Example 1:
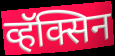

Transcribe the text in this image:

व्हॅक्सिन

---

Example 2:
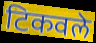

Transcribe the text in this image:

टिकवले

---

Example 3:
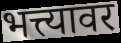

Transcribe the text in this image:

भत्त्यावर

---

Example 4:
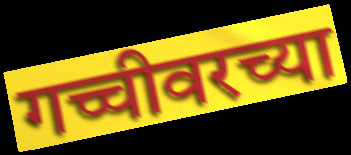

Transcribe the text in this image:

गच्चीवरच्या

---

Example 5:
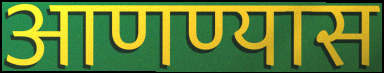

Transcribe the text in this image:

आणण्यास